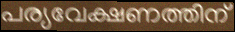
പര്യവേക്ഷണത്തിന്